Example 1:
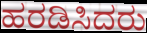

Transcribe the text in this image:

ಹರಡಿಸಿದರು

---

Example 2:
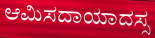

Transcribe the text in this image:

ಆಮಿಸದಾಯಾದಸ್ಸ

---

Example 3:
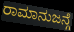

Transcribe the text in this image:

ರಾಮಾನುಜನ್ಗೆ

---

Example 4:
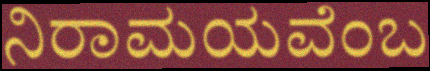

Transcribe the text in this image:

ನಿರಾಮಯವೆಂಬ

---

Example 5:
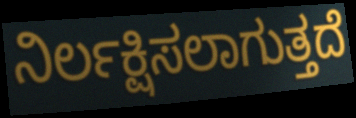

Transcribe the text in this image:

ನಿರ್ಲಕ್ಷಿಸಲಾಗುತ್ತದೆ